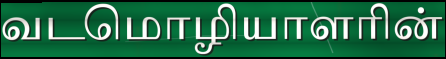
வடமொழியாளரின்